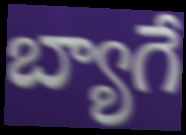
బ్యాగే